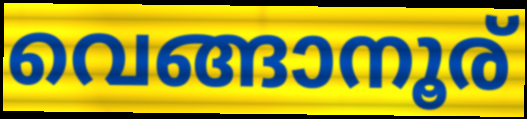
വെങ്ങാനൂര്